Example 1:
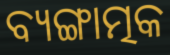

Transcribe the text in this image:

ବ୍ୟଙ୍ଗାତ୍ମକ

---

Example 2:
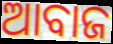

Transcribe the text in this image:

ଆବାଜ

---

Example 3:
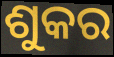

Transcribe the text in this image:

ଶୁକର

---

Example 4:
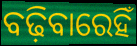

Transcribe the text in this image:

ବଢ଼ିବାରେହିଁ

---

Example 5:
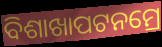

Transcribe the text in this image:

ବିଶାଖାପଟନମ୍ରେ